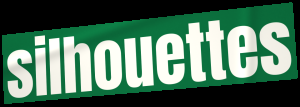
silhouettes